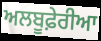
ਅਲਬੂਫ਼ੇਰੀਆ